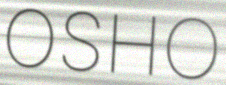
OSHO